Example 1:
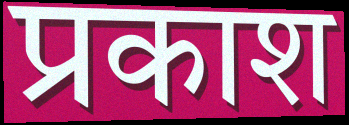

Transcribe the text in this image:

प्रकाश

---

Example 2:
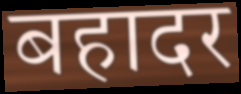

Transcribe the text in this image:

बहादर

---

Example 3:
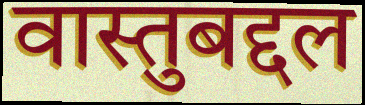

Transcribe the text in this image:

वास्तुबद्दल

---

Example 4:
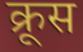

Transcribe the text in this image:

क्रूस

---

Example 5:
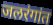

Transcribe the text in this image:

जलरंगांत